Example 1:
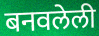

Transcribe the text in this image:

बनवलेली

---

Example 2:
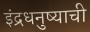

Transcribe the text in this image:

इंद्रधनुष्याची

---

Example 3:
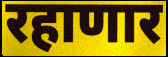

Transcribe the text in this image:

रहाणार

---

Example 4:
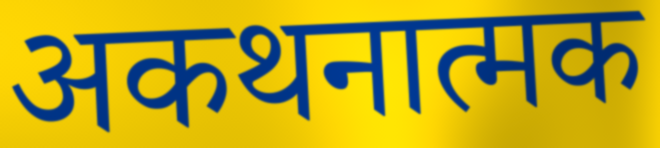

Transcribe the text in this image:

अकथनात्मक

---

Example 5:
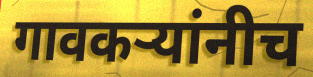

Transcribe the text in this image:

गावकऱ्यांनीच